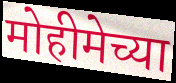
मोहीमेच्या